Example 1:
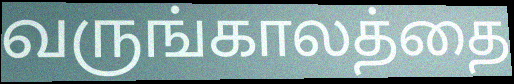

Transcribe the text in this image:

வருங்காலத்தை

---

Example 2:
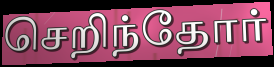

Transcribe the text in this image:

செறிந்தோர்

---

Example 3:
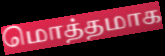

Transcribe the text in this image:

மொத்தமாக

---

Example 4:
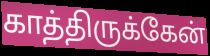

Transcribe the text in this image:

காத்திருக்கேன்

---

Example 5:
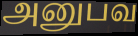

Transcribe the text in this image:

அனுபவ